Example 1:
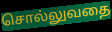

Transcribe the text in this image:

சொல்லுவதை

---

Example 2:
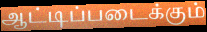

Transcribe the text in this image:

ஆட்டிப்படைக்கும்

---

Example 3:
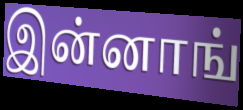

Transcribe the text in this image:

இன்னாங்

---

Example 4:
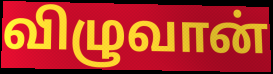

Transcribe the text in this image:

விழுவான்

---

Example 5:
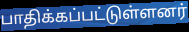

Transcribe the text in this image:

பாதிக்கப்பட்டுள்ளனர்